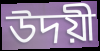
উদয়ী